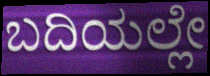
ಬದಿಯಲ್ಲೇ